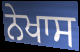
ਨੇਖਾਸ